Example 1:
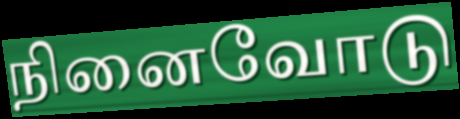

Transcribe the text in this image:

நினைவோடு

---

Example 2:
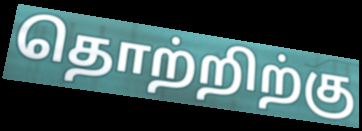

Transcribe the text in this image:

தொற்றிற்கு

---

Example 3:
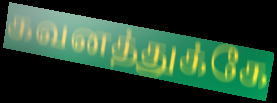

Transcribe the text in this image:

கவனத்துக்கே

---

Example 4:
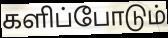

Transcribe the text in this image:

களிப்போடும்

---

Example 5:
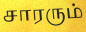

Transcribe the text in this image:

சாரரும்